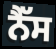
ਨੈੱਸ